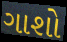
ગાશો